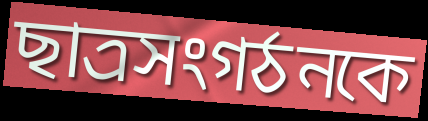
ছাত্রসংগঠনকে